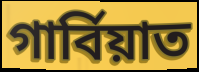
গার্বিয়াত